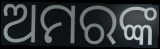
ଅମରଙ୍କ